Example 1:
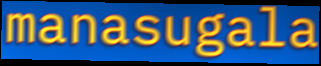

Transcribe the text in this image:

manasugala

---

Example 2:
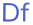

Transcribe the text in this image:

Df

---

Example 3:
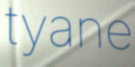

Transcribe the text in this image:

tyane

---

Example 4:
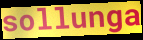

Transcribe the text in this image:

sollunga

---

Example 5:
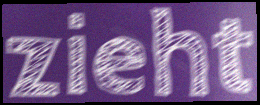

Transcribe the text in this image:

zieht